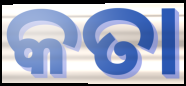
କତା